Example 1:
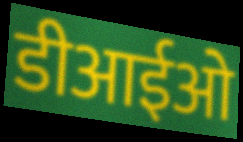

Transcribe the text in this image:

डीआईओ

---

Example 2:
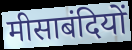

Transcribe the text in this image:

मीसाबंदियों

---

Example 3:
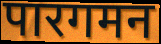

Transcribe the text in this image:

पारगमन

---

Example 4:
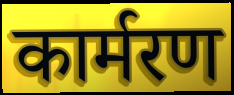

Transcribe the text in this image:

कार्मरण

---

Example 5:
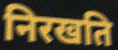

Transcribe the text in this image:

निरखति